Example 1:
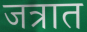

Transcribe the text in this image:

जत्रात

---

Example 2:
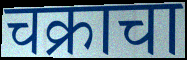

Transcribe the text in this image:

चक्राचा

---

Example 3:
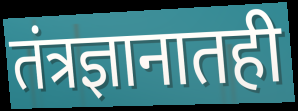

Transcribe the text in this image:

तंत्रज्ञानातही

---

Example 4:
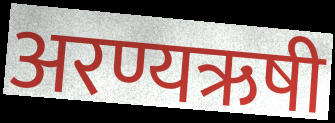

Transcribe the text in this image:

अरण्यऋषी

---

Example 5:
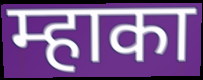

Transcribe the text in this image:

म्हाका